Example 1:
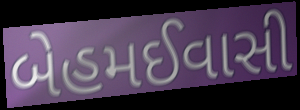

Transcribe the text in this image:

બેહમઈવાસી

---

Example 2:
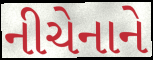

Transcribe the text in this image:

નીચેનાને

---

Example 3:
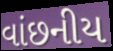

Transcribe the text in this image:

વાંછનીય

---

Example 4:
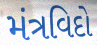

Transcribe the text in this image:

મંત્રવિદો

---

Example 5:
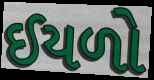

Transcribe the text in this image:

ઈયળો